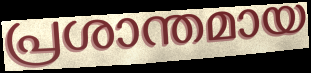
പ്രശാന്തമായ